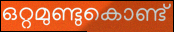
ഒറ്റമുണ്ടുകൊണ്ട്